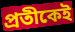
প্রতীকেই